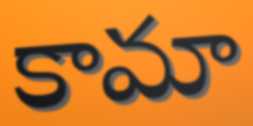
కామా